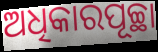
ଅଧିକାରପୂଚ୍ଛା